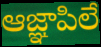
ఆజ్ఞాపిలే